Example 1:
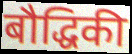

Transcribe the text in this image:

बौद्धिकी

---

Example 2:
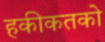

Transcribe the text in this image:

हकीकतको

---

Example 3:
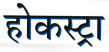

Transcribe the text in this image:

होकस्ट्रा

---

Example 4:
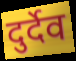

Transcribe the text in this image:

दुर्देव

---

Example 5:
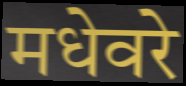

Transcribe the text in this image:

मधेवरे